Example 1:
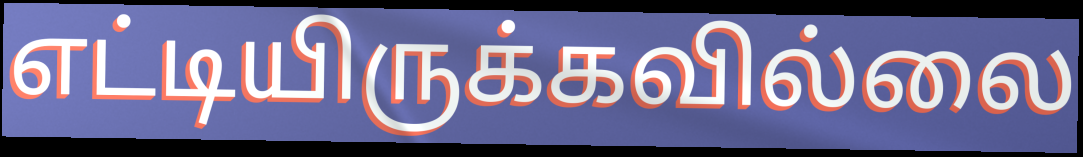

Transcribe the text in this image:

எட்டியிருக்கவில்லை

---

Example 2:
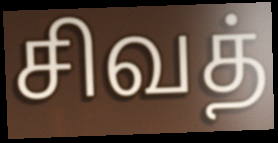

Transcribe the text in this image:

சிவத்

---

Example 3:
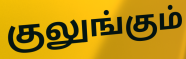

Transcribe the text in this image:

குலுங்கும்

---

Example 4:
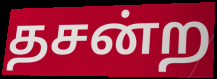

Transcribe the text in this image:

தசன்ற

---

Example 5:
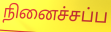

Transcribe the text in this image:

நினைச்சப்ப